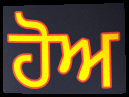
ਹੋਅ